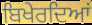
ਬਿਖੇਰਦਿਆਂ